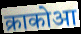
क्राकोआ